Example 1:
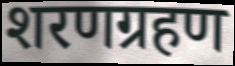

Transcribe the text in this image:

शरणग्रहण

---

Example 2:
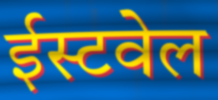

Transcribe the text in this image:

ईस्टवेल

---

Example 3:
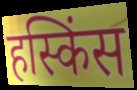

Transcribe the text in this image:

हस्किंस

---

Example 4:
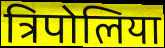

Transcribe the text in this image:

त्रिपोलिया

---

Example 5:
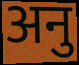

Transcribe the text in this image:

अनु